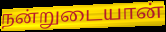
நன்றுடையான்